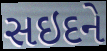
સઇદને